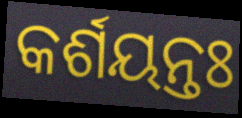
କର୍ଶୟନ୍ତଃ